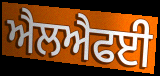
ਐਲਐਫਈ